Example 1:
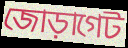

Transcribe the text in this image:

জোড়াগেট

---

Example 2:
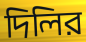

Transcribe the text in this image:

দিলির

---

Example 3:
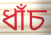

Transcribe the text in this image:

ধাঁচ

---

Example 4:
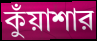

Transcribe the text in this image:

কুঁয়াশার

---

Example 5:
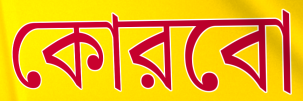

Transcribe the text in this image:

কোরবো